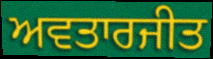
ਅਵਤਾਰਜੀਤ